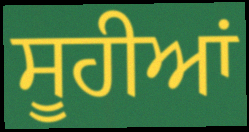
ਸੂਹੀਆਂ